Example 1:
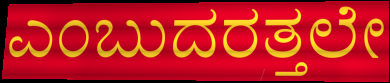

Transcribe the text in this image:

ಎಂಬುದರತ್ತಲೇ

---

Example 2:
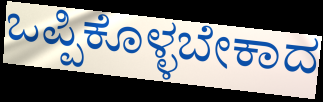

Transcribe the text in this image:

ಒಪ್ಪಿಕೊಳ್ಳಬೇಕಾದ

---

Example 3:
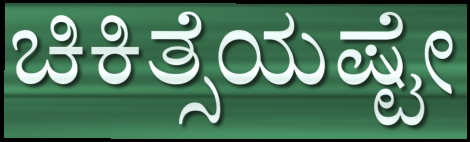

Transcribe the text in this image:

ಚಿಕಿತ್ಸೆಯಷ್ಟೇ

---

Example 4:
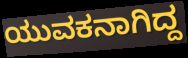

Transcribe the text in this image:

ಯುವಕನಾಗಿದ್ದ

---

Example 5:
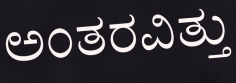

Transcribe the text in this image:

ಅಂತರವಿತ್ತು